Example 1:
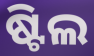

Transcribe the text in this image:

ଷ୍ଟିଲ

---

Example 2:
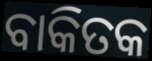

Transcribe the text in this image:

ବାକିତକ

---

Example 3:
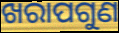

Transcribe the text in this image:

ଖରାପଗୁଣ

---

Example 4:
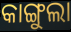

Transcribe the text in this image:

କାଙ୍ଗୁଲା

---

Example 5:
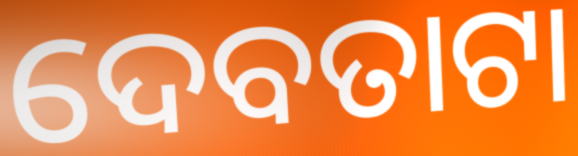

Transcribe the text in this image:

ଦେବତାଟା